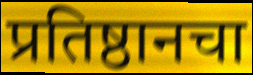
प्रतिष्ठानचा